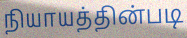
நியாயத்தின்படி